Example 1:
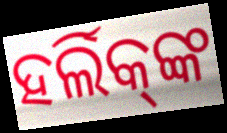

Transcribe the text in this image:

ହର୍ଲିକ୍‌ଙ୍କ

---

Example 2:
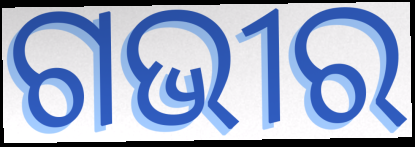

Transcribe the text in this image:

ଗଭୀର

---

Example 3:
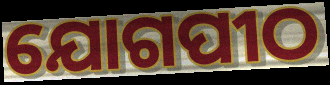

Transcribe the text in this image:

ଯୋଗପୀଠ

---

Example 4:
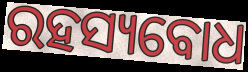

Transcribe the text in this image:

ରହସ୍ୟବୋଧ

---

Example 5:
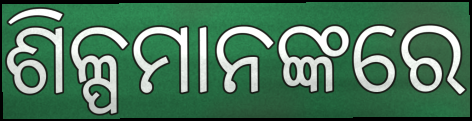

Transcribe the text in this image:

ଶିଳ୍ପମାନଙ୍କରେ